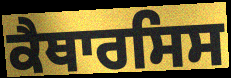
ਕੈਥਾਰਸਿਸ